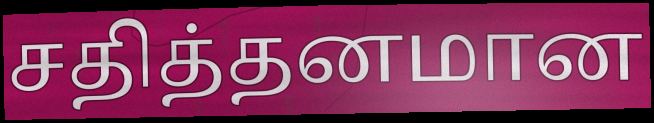
சதித்தனமான